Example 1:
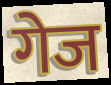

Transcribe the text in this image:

गेज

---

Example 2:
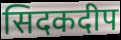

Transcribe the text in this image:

सिदकदीप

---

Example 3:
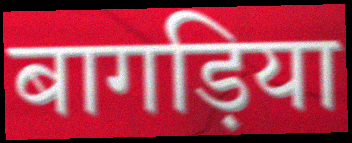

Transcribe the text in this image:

बागड़िया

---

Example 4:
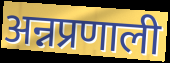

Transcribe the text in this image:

अन्नप्रणाली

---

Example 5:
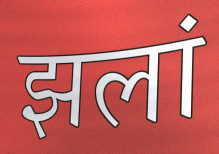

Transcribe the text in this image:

झलां